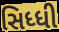
સિધ્ધી